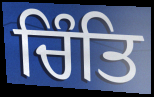
ਚਿੰਤਿ